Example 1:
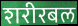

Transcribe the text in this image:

शरीरबल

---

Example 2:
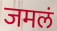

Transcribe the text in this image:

जमलं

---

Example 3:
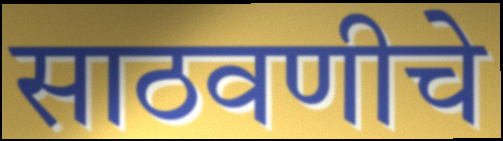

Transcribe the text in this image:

साठवणीचे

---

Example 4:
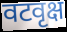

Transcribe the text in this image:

वटवृक्ष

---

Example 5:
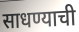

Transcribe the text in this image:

साधण्याची